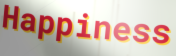
Happiness